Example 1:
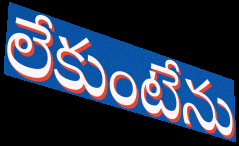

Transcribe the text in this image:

లేకుంటేను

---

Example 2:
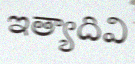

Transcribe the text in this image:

ఇత్యాదివి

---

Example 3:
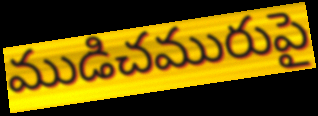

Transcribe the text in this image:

ముడిచమురుపై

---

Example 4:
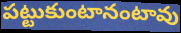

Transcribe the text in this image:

పట్టుకుంటానంటావు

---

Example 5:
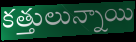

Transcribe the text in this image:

కత్తులున్నాయి